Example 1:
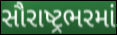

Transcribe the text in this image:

સૌરાષ્ટ્રભરમાં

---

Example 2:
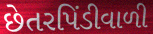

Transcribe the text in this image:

છેતરપિંડીવાળી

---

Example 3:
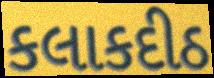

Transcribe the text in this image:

કલાકદીઠ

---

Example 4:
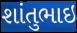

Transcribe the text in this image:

શાંતુભાઇ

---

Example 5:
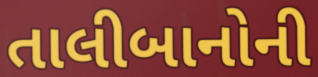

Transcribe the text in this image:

તાલીબાનોની